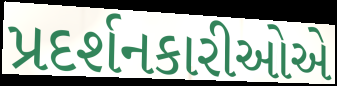
પ્રદર્શનકારીઓએ